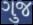
ગુજ